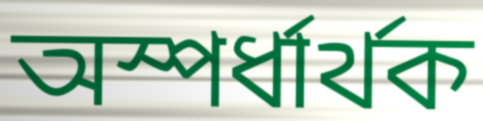
অস্পৰ্ধাৰ্থক